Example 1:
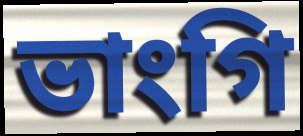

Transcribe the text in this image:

ভাংগি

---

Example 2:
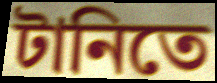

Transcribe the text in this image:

টানিতে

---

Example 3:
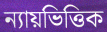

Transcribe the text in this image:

ন্যায়ভিত্তিক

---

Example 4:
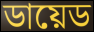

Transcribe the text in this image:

ডায়েড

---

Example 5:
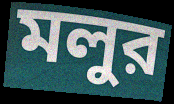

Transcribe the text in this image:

মলুর